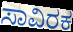
ಸಾವಿರಕ